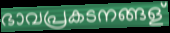
ഭാവപ്രകടനങ്ങള്